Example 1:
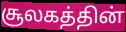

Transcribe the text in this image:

சூலகத்தின்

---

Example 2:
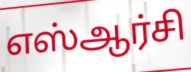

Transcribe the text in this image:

எஸ்ஆர்சி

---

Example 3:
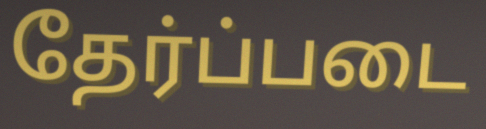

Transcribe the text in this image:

தேர்ப்படை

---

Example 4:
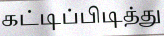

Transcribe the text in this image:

கட்டிப்பிடித்து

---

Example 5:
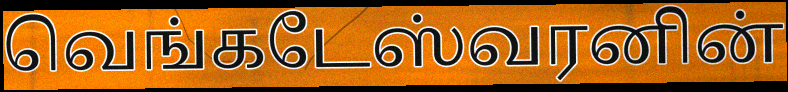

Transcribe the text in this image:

வெங்கடேஸ்வரனின்